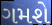
ગમશે